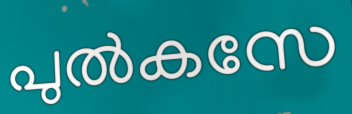
പുൽകസേ